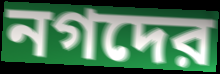
নগদের